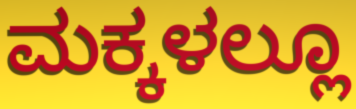
ಮಕ್ಕಳಲ್ಲೂ